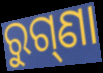
ରୁଗ୍‌ଣା